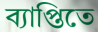
ব্যাপ্তিতে